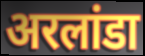
अरलांडा